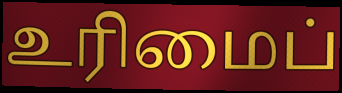
உரிமைப்